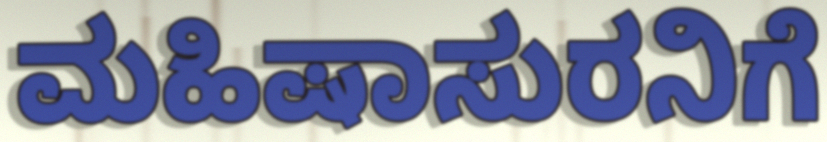
ಮಹಿಷಾಸುರನಿಗೆ